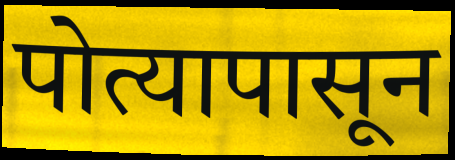
पोत्यापासून